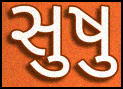
સુષુ